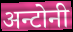
अन्टोनी